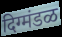
दिग्मंडळ